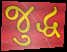
જુદ્ધ